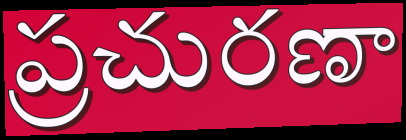
ప్రచురణా